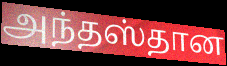
அந்தஸ்தான